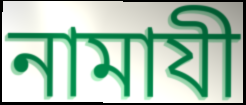
নামাযী